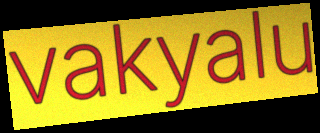
vakyalu